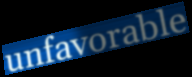
unfavorable